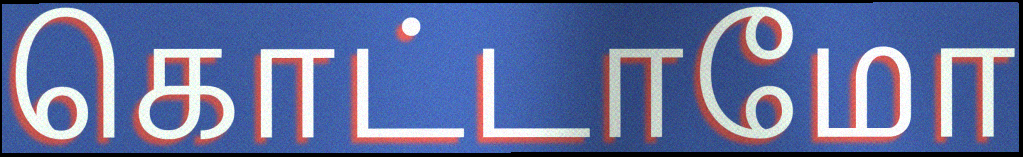
கொட்டாமோ